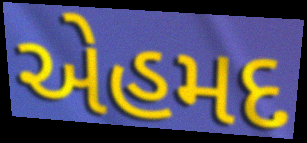
એહમદ